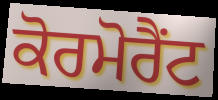
ਕੋਰਮੋਰੈਂਟ